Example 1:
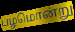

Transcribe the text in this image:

பழமொன்று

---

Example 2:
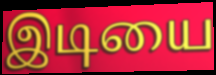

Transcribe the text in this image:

இடியை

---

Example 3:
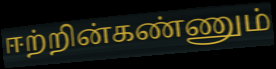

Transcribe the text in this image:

ஈற்றின்கண்ணும்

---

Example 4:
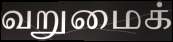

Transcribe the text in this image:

வறுமைக்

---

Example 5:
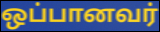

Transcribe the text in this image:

ஒப்பானவர்